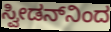
ಸ್ವೀಡನ್‌ನಿಂದ